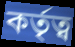
কর্তৃত্ব